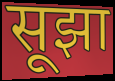
सूझा